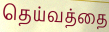
தெய்வத்தை